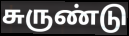
சுருண்டு